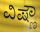
ವಿಷ್ಣೌ